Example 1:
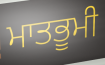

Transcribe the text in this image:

ਮਾਤਭੂਮੀ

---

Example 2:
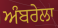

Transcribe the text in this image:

ਅੰਬਰੇਲਾ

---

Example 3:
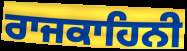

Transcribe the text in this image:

ਰਾਜਕਾਹਿਨੀ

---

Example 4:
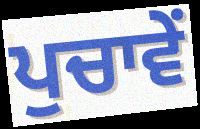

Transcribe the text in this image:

ਪੁਚਾਵੇਂ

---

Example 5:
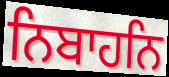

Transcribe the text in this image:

ਨਿਬਾਹਨਿ